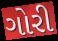
ગોરી